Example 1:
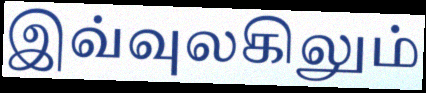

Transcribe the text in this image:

இவ்வுலகிலும்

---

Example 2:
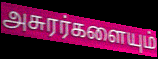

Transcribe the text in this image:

அசுரர்களையும்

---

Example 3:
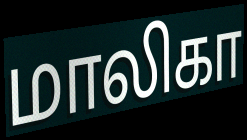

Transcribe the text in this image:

மாலிகா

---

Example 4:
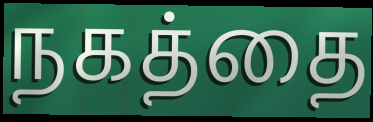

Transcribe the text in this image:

நகத்தை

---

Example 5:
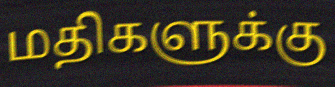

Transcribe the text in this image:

மதிகளுக்கு